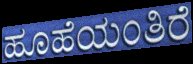
ಹೂಹೆಯಂತಿರೆ